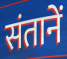
संतानें